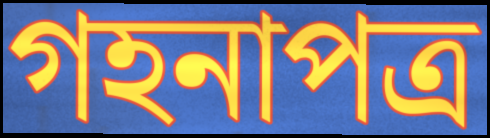
গহনাপত্র